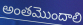
అంతమొందాలి